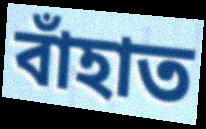
বাঁহাত